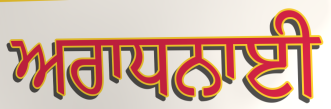
ਅਰਾਧਨਾਈ